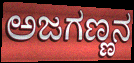
ಅಜಗಣ್ಣನ